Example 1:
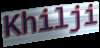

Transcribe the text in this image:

Khilji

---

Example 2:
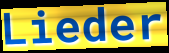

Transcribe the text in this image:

Lieder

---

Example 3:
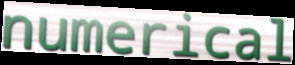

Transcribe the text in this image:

numerical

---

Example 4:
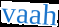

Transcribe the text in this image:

vaah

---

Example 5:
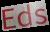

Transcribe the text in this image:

Eds